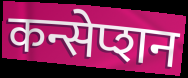
कन्सेप्शन